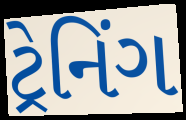
ટ્રેનિંગ